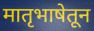
मातृभाषेतून